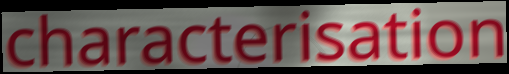
characterisation